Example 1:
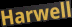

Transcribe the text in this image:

Harwell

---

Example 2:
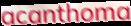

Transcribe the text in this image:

acanthoma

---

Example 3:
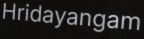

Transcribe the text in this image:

Hridayangam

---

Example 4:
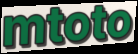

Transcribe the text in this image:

mtoto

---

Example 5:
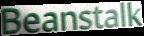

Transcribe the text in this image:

Beanstalk